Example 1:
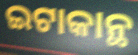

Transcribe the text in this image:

ଇଟାକାନ୍ଥ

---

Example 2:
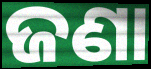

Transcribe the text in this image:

ଜଣା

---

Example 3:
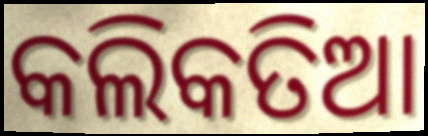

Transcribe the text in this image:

କଲିକତିଆ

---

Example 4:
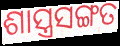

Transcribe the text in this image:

ଶାସ୍ତ୍ରସଙ୍ଗତ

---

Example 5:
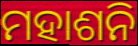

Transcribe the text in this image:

ମହାଶନି